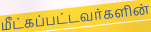
மீட்கப்பட்டவர்களின்